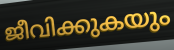
ജീവിക്കുകയും